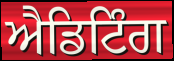
ਐਡਿਟਿੰਗ